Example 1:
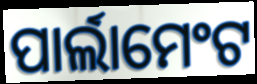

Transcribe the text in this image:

ପାର୍ଲାମେଂଟ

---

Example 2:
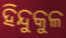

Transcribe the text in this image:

ହିନ୍ଦୁକୁଳ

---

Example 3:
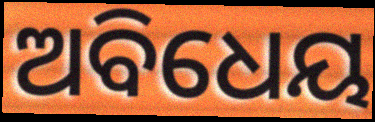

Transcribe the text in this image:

ଅବିଧେୟ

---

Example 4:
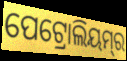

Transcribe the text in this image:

ପେଟ୍ରୋଲିୟମ୍‌ର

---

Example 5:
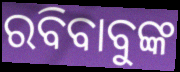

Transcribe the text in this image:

ରବିବାବୁଙ୍କ